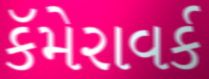
કૅમેરાવર્ક